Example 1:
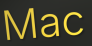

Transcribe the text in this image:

Mac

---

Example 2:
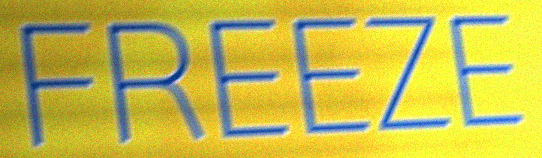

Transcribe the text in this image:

FREEZE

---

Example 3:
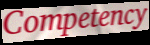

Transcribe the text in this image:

Competency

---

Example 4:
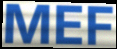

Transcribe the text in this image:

MEF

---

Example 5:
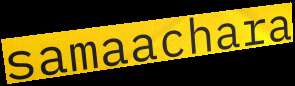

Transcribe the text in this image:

samaachara